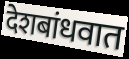
देशबांधवात